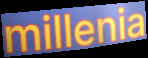
millenia